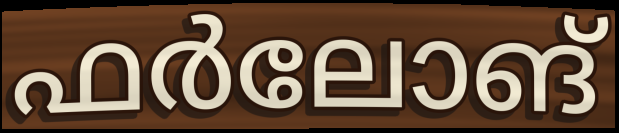
ഫർലോങ്